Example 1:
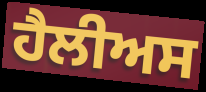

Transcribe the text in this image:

ਹੈਲੀਅਸ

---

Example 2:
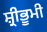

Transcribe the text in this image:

ਸ਼੍ਰੀਭੂਮੀ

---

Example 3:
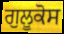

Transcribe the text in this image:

ਗੁਲੂਕੋਸ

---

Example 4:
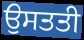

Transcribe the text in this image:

ਉਸਤਤੀ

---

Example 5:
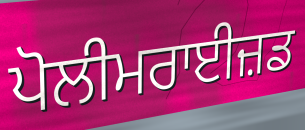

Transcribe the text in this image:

ਪੋਲੀਮਰਾਈਜ਼ਡ